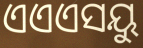
ଏଏଏସୟୁ